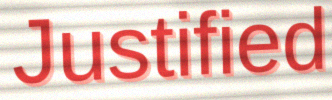
Justified